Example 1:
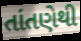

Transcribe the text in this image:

તાંતણેથી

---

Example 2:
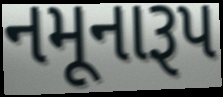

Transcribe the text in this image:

નમૂનારૂપ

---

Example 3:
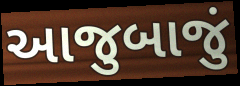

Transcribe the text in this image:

આજુબાજું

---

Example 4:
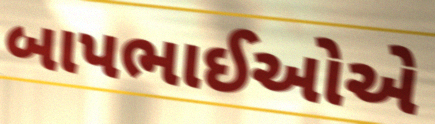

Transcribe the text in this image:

બાપભાઈઓએ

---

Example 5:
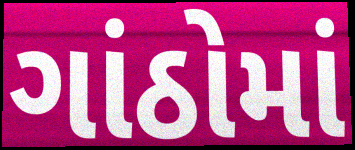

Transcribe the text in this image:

ગાંઠોમાં